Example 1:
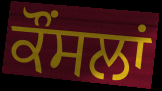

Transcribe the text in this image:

ਕੌਂਸਲਾਂ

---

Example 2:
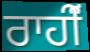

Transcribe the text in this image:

ਰਾਹੀਂੰ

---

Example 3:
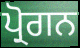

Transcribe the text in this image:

ਪ੍ਰੋਗਨ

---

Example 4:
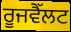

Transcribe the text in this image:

ਰੂਜਵੈੱਲਟ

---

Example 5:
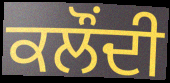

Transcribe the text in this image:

ਕਲੌਂਦੀ